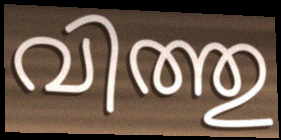
വിത്തു